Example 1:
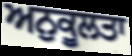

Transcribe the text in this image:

ਅਨੁਕੂਲਤਾ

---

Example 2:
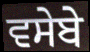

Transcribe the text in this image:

ਵਸੇਬੇ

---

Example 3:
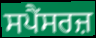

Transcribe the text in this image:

ਸਪੈਂਸਰਜ਼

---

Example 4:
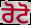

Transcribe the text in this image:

ਰੋਟੋ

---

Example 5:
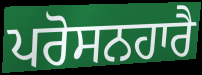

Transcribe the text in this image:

ਪਰੋਸਨਹਾਰੈ